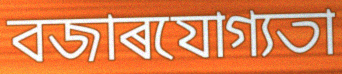
বজাৰযোগ্যতা